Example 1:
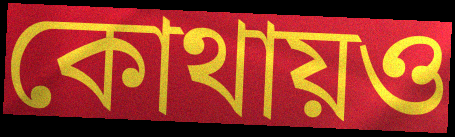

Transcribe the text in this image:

কোথায়ও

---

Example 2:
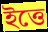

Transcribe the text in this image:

ইত্তে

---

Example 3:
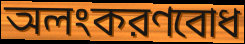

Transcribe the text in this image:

অলংকরণবোধ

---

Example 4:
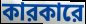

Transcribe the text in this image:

কারকারে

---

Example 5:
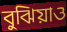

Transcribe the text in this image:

বুঝিয়াও